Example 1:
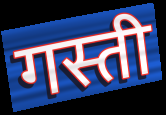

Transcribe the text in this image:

गस्ती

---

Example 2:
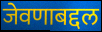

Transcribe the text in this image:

जेवणाबद्दल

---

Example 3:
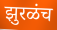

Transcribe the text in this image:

झुरळंच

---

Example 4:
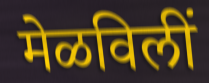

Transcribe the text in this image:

मेळविलीं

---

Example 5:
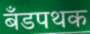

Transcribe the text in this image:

बँडपथक